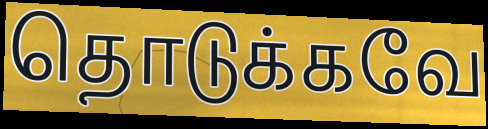
தொடுக்கவே